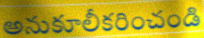
అనుకూలీకరించండి